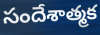
సందేశాత్మక